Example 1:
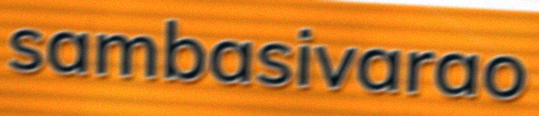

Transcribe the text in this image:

sambasivarao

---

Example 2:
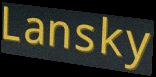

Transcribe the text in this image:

Lansky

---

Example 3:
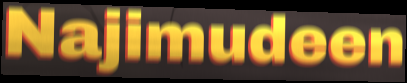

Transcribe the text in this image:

Najimudeen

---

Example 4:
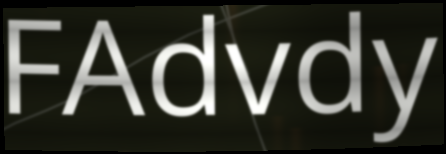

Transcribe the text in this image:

FAdvdy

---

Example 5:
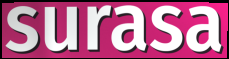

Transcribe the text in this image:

surasa